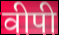
वीपी